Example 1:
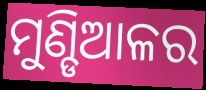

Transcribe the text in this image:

ମୁଣ୍ଡିଆଳର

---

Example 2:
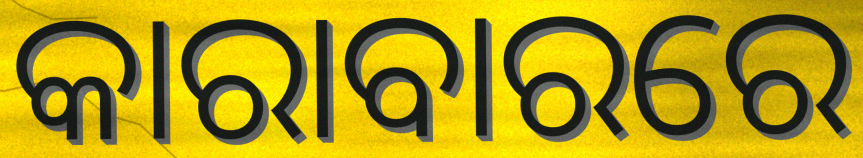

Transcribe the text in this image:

କାରାବାରରେ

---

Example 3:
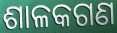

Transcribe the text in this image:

ଶାଳକଗଣ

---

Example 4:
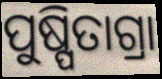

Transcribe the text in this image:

ପୁଷ୍ପିତାଗ୍ରା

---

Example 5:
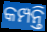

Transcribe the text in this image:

କମ୍ପନ୍ତି